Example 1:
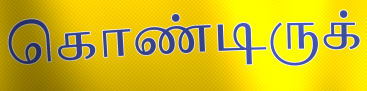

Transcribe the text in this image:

கொண்டிருக்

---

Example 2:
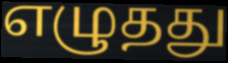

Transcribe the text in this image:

எழுதது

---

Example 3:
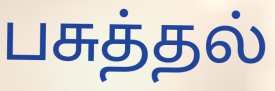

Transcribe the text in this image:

பசுத்தல்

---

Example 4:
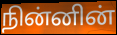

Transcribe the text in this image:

நின்னின்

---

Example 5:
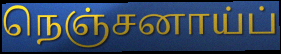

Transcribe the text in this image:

நெஞ்சனாய்ப்